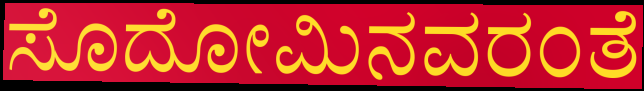
ಸೊದೋಮಿನವರಂತೆ